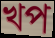
খপ